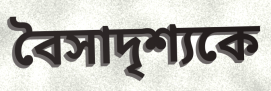
বৈসাদৃশ্যকে